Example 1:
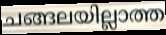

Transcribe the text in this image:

ചങ്ങലയില്ലാത്ത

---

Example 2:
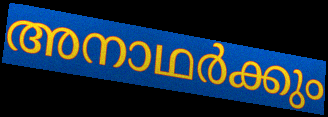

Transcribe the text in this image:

അനാഥർക്കും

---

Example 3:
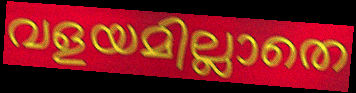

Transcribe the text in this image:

വളയമില്ലാതെ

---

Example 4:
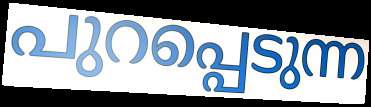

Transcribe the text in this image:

പുറപ്പെടുന്ന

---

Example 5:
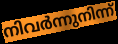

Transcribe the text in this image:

നിവർന്നുനിന്ന്